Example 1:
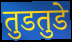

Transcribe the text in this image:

तुडतुडे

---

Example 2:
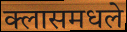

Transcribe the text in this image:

क्लासमधले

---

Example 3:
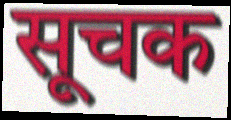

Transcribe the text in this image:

सूचक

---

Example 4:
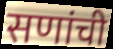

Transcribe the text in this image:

सणांची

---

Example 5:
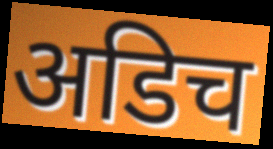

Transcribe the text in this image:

अडिच